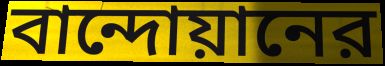
বান্দোয়ানের